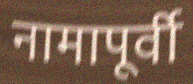
नामापूर्वी